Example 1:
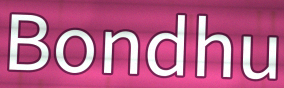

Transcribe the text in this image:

Bondhu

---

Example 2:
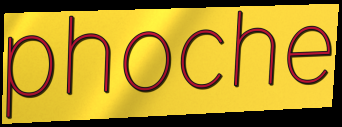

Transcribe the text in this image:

phoche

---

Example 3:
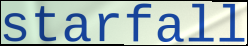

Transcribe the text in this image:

starfall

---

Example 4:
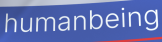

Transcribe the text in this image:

humanbeing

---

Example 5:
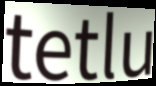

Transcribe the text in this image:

tetlu